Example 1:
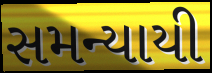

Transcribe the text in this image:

સમન્યાયી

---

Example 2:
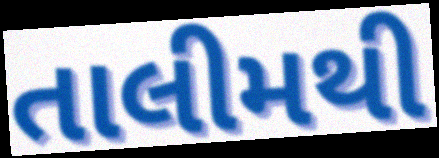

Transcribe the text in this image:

તાલીમથી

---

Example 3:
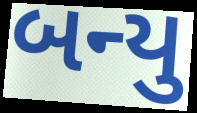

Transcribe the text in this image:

બન્યુ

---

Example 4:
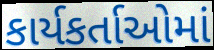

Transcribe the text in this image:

કાર્યકર્તાઓમાં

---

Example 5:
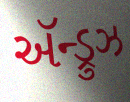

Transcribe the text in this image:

ઍન્ડ્રુઝ